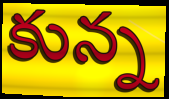
కున్న